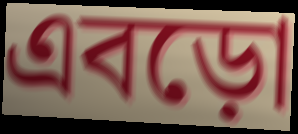
এবড়ো